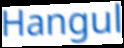
Hangul